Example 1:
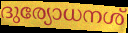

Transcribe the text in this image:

ദുര്യോധനശ്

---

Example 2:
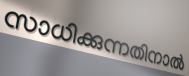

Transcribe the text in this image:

സാധിക്കുന്നതിനാൽ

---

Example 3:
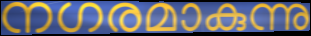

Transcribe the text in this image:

നഗരമാകുന്നു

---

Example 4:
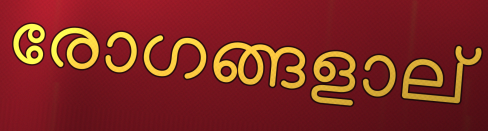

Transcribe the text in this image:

രോഗങ്ങളാല്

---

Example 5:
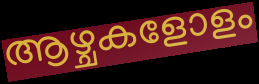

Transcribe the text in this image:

ആഴ്ചകളോളം